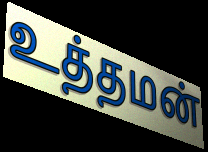
உத்தமன்